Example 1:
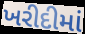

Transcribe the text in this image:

ખરીદીમાં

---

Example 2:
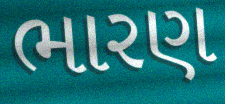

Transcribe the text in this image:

ભારણ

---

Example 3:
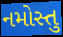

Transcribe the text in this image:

નમોસ્તુ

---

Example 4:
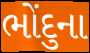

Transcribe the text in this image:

ભોંદુના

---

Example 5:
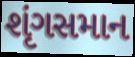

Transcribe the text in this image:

શૃંગસમાન